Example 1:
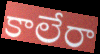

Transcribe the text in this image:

కాలేరా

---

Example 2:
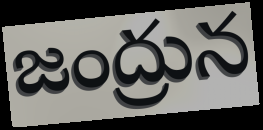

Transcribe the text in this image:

జంద్రున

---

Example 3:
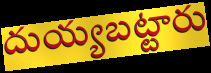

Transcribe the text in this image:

దుయ్యబట్టారు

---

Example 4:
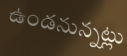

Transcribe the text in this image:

ఉండనున్నట్లు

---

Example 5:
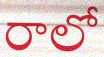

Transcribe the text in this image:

రాలో